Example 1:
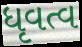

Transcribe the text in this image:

ધૃવત્વ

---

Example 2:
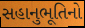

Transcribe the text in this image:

સહાનુભૂતિનો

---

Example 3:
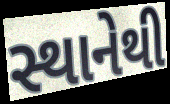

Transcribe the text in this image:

સ્થાનેથી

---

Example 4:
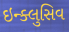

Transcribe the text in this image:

ઇન્ક્લુસિવ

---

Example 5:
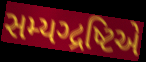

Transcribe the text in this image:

સમ્યગ્દ્રષ્ટિએ